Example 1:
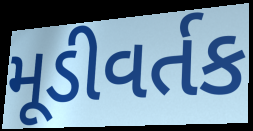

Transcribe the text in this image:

મૂડીવર્તક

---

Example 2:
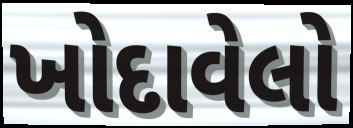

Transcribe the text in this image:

ખોદાવેલો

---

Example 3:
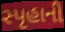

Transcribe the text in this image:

સ્પૃહાની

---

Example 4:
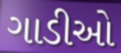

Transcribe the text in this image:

ગાડીઓ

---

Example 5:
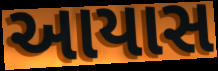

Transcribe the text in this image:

આયાસ